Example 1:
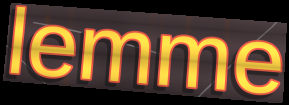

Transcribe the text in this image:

lemme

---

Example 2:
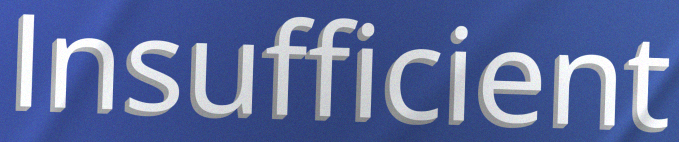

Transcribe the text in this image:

Insufficient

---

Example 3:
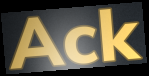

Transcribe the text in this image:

Ack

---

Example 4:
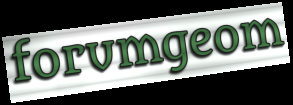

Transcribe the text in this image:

forumgeom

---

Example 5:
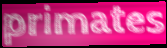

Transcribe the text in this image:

primates